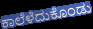
ಕಾಲೆಳೆದುಕೊಂಡು